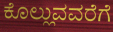
ಕೊಲ್ಲುವವರೆಗೆ